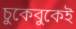
চুকেবুকেই